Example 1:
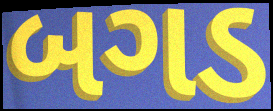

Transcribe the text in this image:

બગડ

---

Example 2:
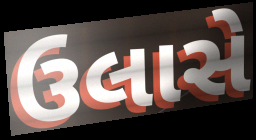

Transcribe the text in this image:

ઉલાસે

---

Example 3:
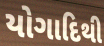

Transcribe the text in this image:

યોગાદિથી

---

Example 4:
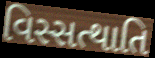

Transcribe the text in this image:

વિસ્સત્થાતિ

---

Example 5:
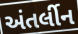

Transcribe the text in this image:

અંતર્લીન